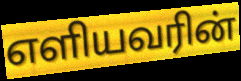
எளியவரின்